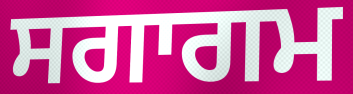
ਸਗਾਗਮ